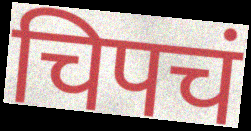
चिपचं